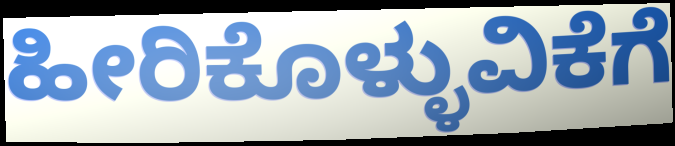
ಹೀರಿಕೊಳ್ಳುವಿಕೆಗೆ